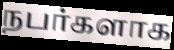
நபர்களாக